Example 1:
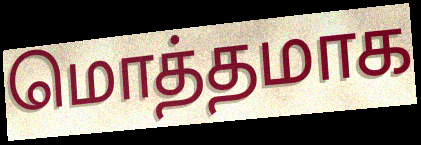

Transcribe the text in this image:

மொத்தமாக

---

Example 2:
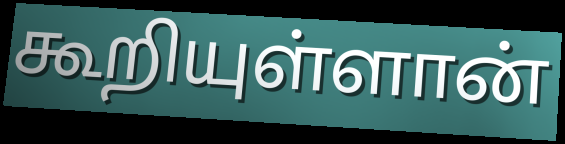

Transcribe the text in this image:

கூறியுள்ளான்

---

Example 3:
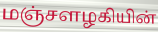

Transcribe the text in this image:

மஞ்சளழகியின்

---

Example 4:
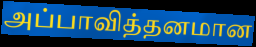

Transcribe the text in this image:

அப்பாவித்தனமான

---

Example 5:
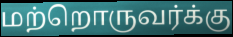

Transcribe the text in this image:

மற்றொருவர்க்கு